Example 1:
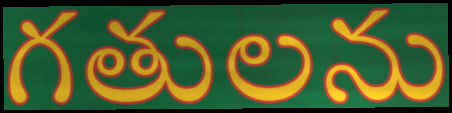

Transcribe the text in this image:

గతులను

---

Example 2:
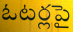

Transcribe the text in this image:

ఓటర్లపై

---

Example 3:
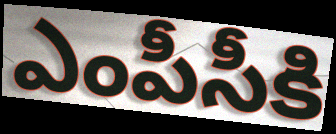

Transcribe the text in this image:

ఎంపీసీకి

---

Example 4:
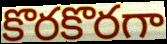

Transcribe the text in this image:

కొరకొరగా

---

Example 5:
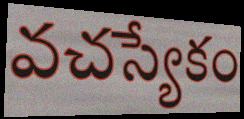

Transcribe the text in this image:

వచస్యేకం